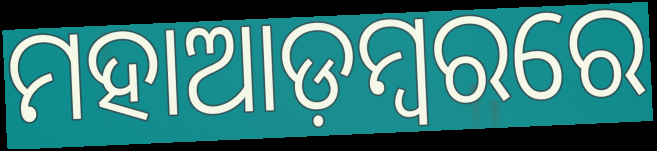
ମହାଆଡ଼ମ୍ୱରରେ